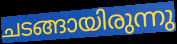
ചടങ്ങായിരുന്നു